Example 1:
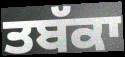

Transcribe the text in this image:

ਤਬੱਕਾ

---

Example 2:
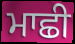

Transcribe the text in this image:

ਮਾਛੀ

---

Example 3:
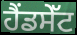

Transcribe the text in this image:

ਹੈਂਡਸੇੱਟ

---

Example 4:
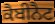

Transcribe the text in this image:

ਕੈਬੀਨੈਟ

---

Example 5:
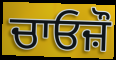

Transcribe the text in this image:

ਚਾਓਜ਼ੌ